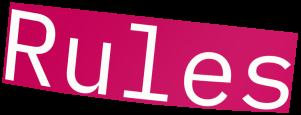
Rules